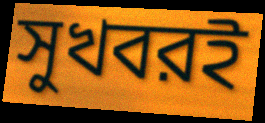
সুখবরই